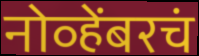
नोव्हेंबरचं